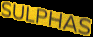
SULPHAS